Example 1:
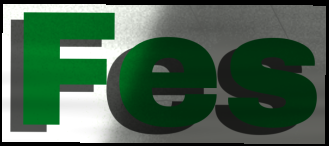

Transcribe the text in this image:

Fes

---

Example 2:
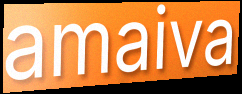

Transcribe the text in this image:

amaiva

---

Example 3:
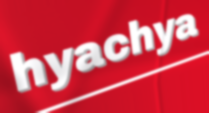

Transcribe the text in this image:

hyachya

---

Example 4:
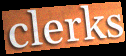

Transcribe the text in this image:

clerks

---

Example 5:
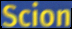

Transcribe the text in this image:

Scion